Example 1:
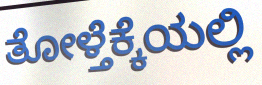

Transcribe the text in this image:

ತೋಳ್ತೆಕ್ಕೆಯಲ್ಲಿ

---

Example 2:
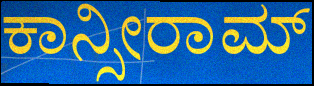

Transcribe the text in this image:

ಕಾನ್ಸೀರಾಮ್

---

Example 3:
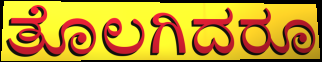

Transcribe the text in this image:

ತೊಲಗಿದರೂ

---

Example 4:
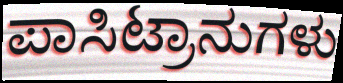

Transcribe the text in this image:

ಪಾಸಿಟ್ರಾನುಗಳು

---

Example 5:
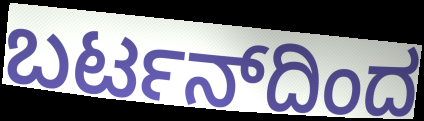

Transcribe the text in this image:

ಬರ್ಟನ್‌ದಿಂದ